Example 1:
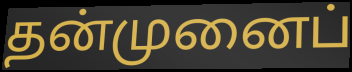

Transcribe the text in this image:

தன்முனைப்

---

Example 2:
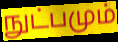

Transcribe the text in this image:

நுட்பமும்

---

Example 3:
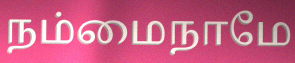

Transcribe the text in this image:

நம்மைநாமே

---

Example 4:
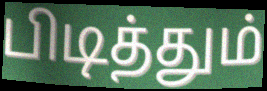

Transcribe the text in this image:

பிடித்தும்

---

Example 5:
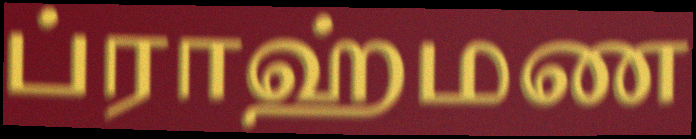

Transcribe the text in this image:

ப்ராஹ்மண